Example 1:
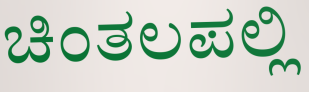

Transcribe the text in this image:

ಚಿಂತಲಪಲ್ಲಿ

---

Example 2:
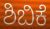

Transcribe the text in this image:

ಶಿಬಿಕೆ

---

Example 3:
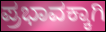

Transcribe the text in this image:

ಪ್ರಭಾವಕ್ಕಾಗಿ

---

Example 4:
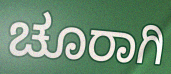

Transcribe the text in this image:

ಚೂರಾಗಿ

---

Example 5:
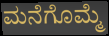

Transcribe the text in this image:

ಮನೆಗೊಮ್ಮೆ